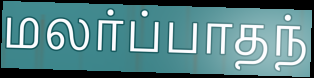
மலர்ப்பாதந்